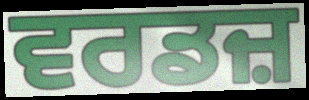
ਵਰਡਜ਼